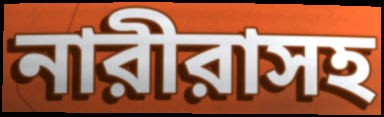
নারীরাসহ